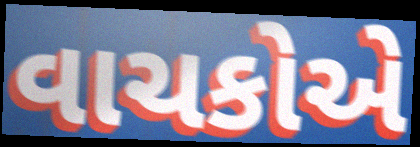
વાચકોએ